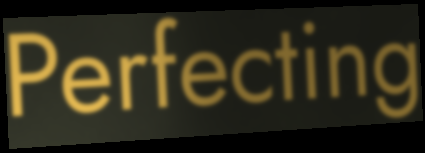
Perfecting